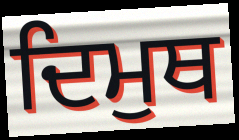
ਦਿਮੁਥ